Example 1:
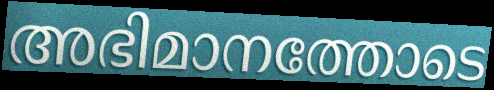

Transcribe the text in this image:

അഭിമാനത്തോടെ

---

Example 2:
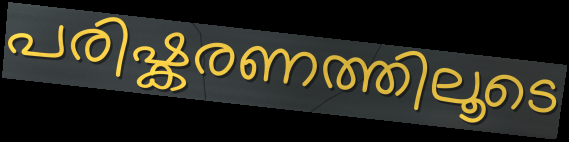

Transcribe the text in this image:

പരിഷ്കരണത്തിലൂടെ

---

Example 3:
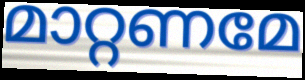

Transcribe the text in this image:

മാറ്റണമേ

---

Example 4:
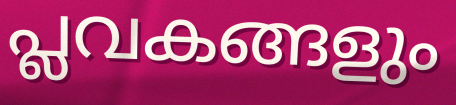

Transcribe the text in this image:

പ്ലവകങ്ങളും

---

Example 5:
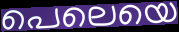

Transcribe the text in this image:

പെലെയെ